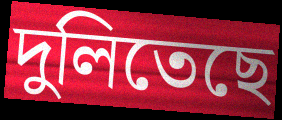
দুলিতেছে